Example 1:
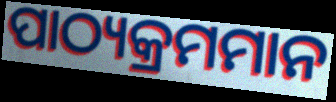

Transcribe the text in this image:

ପାଠ୍ୟକ୍ରମମାନ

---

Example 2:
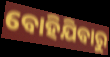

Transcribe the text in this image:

ବୋହିଯିବାରୁ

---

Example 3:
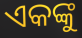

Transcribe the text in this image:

ଏକଙ୍କୁ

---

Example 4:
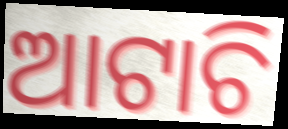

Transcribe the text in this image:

ଆଟାଚି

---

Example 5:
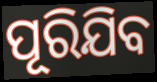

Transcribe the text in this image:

ପୂରିଯିବ